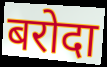
बरोदा